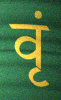
वृं